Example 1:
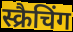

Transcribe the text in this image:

स्क्रैचिंग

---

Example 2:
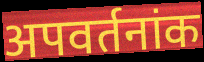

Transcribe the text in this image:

अपवर्तनांक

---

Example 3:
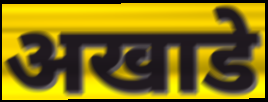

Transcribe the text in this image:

अखाडे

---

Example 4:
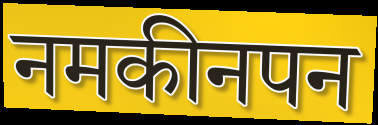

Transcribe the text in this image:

नमकीनपन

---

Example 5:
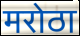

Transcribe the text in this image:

मरोठा